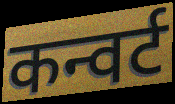
कन्वर्ट